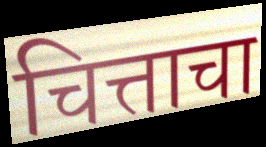
चित्ताचा